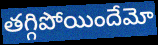
తగ్గిపోయిందేమో